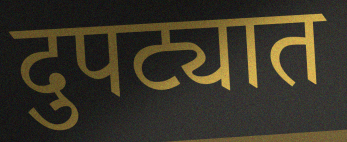
दुपट्यात